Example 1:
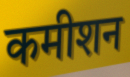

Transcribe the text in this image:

कमीशन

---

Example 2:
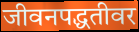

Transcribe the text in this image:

जीवनपद्धतीवर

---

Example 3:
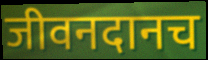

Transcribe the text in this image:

जीवनदानच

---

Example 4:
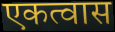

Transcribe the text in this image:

एकत्वास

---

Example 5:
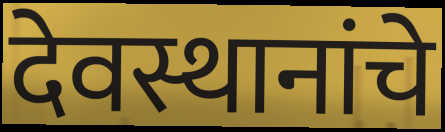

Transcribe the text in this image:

देवस्थानांचे